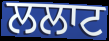
ਲਲਾਟ